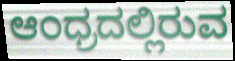
ಆಂಧ್ರದಲ್ಲಿರುವ